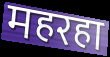
महरहा